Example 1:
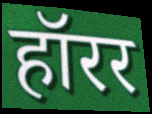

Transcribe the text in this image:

हॉरर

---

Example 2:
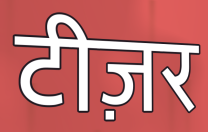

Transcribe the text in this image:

टीज़र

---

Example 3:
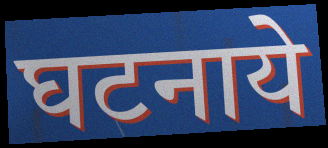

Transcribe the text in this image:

घटनाये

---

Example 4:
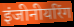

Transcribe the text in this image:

इंजीनीयरिंग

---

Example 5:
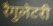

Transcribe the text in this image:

रैगुलेटरी